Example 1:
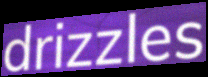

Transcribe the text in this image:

drizzles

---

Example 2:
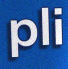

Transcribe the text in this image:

pli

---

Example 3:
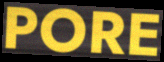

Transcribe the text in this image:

PORE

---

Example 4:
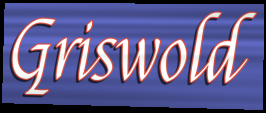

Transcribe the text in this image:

Griswold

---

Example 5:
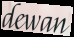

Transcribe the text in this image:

dewan